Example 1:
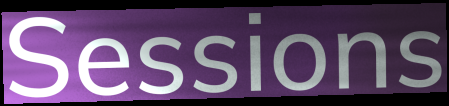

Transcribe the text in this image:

Sessions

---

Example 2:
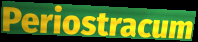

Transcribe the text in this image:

Periostracum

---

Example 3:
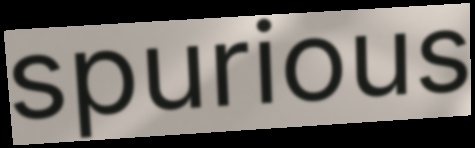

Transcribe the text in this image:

spurious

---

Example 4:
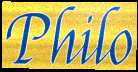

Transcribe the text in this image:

Philo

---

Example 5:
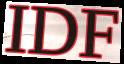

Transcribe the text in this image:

IDF